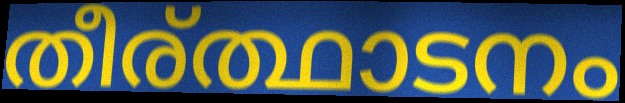
തീര്ത്ഥാടനം